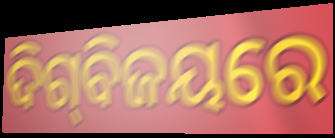
ଦିଗ୍‌ବିଜୟରେ